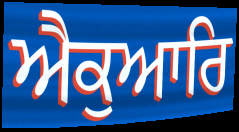
ਐਕੁਆਰਿ